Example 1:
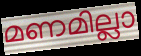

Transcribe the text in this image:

മണമില്ലാ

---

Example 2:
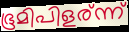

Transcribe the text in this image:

ഭൂമിപിളര്ന്ന്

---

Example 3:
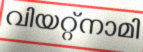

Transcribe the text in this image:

വിയറ്റ്നാമി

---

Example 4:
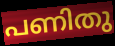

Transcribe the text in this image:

പണിതു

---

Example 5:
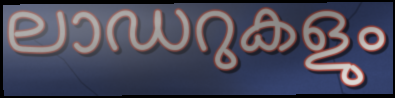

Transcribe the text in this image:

ലാഡറുകളും